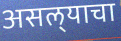
असल्याचा